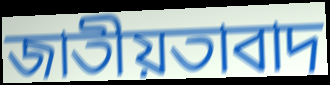
জাতীয়তাবাদ